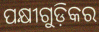
ପକ୍ଷୀଗୁଡ଼ିକର